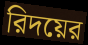
রিদয়ের